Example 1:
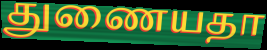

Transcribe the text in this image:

துணையதா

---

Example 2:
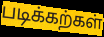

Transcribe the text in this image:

படிக்கற்கள்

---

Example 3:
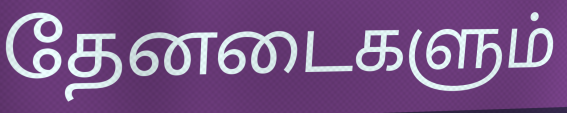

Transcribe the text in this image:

தேனடைகளும்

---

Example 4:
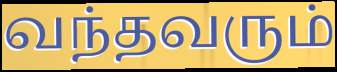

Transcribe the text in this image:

வந்தவரும்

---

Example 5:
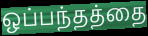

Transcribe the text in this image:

ஒப்பந்தத்தை